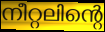
നീറ്റലിന്റെ